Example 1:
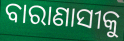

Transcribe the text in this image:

ବାରାଣାସୀକୁ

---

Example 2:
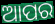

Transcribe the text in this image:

ଆପର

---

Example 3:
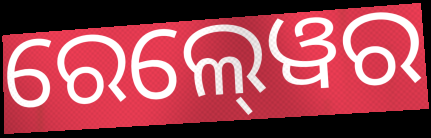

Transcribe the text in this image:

ରେଲ୍‍ୱେର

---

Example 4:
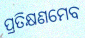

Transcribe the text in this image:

ପ୍ରତିକ୍ଷଣମେବ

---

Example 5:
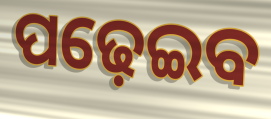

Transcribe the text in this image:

ପଢ଼େଇବ